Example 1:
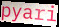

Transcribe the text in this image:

pyari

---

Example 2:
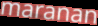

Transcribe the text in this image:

maranan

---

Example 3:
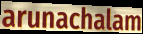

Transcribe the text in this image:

arunachalam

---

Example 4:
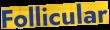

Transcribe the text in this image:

Follicular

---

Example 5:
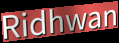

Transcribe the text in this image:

Ridhwan